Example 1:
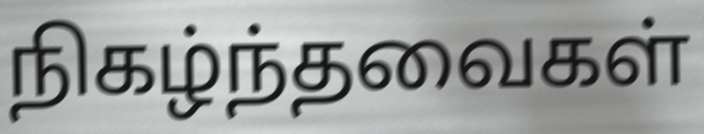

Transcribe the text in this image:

நிகழ்ந்தவைகள்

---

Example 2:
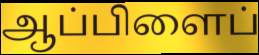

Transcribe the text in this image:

ஆப்பிளைப்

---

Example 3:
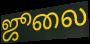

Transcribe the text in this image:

ஜூலை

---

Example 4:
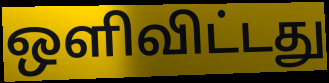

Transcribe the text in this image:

ஒளிவிட்டது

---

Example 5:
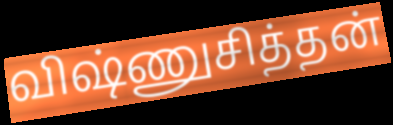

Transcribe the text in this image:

விஷ்ணுசித்தன்